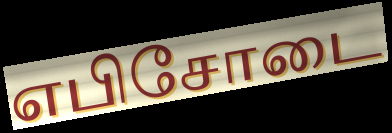
எபிசோடை